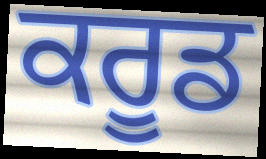
ਕਰੂਡ